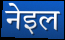
नेइल